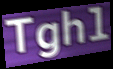
Tghl